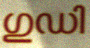
ഗുഡി